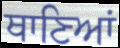
ਥਾਣਿਆਂ